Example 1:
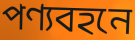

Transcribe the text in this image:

পণ্যবহনে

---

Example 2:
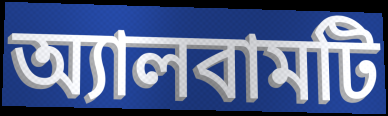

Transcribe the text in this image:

অ্যালবামটি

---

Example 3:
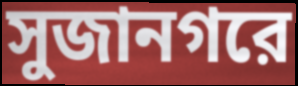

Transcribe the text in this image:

সুজানগরে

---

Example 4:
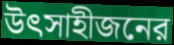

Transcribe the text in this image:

উৎসাহীজনের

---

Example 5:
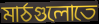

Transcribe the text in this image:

মাঠগুলোতে